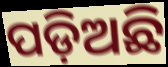
ପଡ଼ିଅଛି